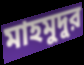
মাহমুদুর